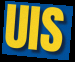
UIS